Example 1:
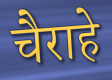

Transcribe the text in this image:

चैराहे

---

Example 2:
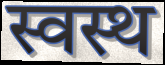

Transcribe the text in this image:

स्वस्थ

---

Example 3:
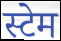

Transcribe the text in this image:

स्टेम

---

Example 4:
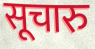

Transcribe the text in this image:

सूचारु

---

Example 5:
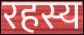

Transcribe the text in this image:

रहस्य